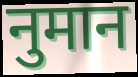
नुमान